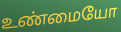
உண்மையோ